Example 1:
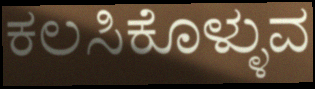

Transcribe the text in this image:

ಕಲಸಿಕೊಳ್ಳುವ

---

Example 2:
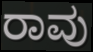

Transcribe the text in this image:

ರಾವು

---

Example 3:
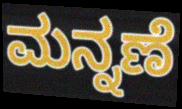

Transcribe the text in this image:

ಮನ್ನಣೆ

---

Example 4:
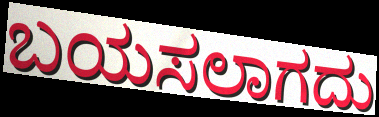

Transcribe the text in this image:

ಬಯಸಲಾಗದು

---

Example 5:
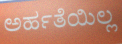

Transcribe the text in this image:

ಅರ್ಹತೆಯಿಲ್ಲ